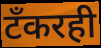
टँकरही